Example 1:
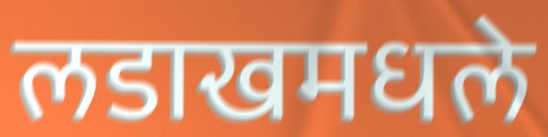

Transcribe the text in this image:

लडाखमधले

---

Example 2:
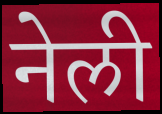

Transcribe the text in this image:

नेली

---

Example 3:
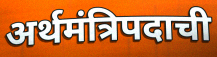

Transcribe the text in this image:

अर्थमंत्रिपदाची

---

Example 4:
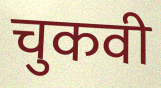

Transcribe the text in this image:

चुकवी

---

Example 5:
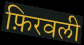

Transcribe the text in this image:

फ़िरवली